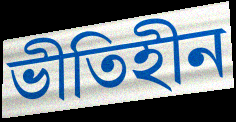
ভীতিহীন